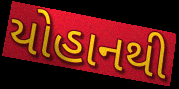
યોહાનથી